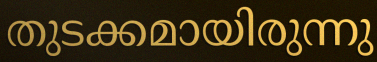
തുടക്കമായിരുന്നു